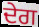
ਦੇਗ